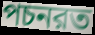
পচনরত